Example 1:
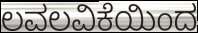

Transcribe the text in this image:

ಲವಲವಿಕೆಯಿಂದ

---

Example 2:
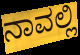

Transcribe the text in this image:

ನಾವಲ್ಲಿ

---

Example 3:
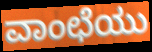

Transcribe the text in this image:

ವಾಂಛೆಯು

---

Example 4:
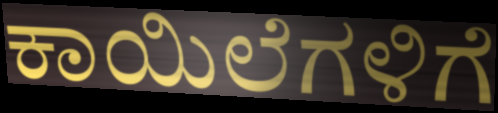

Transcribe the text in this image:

ಕಾಯಿಲೆಗಳಿಗೆ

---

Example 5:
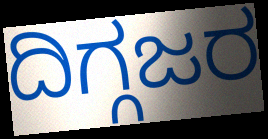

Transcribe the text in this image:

ದಿಗ್ಗಜರ